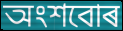
অংশবোৰ